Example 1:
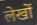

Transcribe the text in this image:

लेखों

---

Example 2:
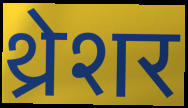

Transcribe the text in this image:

थ्रेशर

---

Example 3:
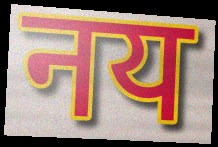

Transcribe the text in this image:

नय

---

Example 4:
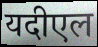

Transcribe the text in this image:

यदीएल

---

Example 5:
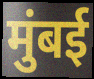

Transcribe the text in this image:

मुंबई